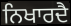
ਨਿਖਾਰਦੈ